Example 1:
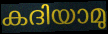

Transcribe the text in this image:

കദിയാമു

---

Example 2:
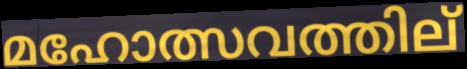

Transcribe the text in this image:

മഹോത്സവത്തില്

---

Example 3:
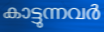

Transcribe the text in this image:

കാട്ടുന്നവർ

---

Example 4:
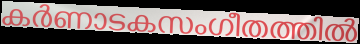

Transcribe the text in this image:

കർണാടകസംഗീതത്തിൽ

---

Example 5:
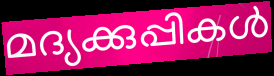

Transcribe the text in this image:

മദ്യക്കുപ്പികൾ